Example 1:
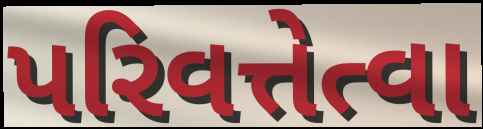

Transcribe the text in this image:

પરિવત્તેત્વા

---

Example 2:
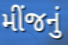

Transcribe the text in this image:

મીંજનું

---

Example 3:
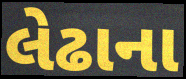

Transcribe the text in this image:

લેઢાના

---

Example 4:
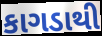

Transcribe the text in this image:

કાગડાથી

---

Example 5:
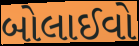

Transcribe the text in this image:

બોલાઈવો